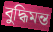
বুদ্ধিমন্ত